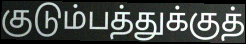
குடும்பத்துக்குத்